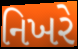
નિખરે